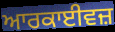
ਆਰਕਾਈਵਜ਼